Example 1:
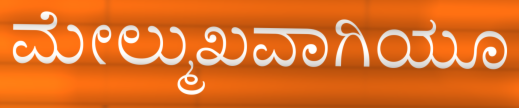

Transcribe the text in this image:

ಮೇಲ್ಮುಖವಾಗಿಯೂ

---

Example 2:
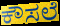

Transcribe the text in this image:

ಕೌಸಲೆ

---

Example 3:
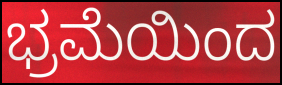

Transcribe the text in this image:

ಭ್ರಮೆಯಿಂದ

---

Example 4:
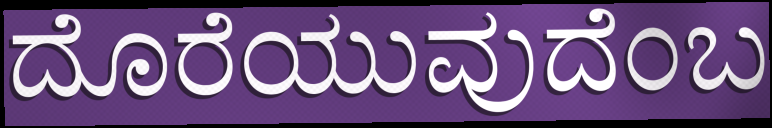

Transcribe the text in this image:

ದೊರೆಯುವುದೆಂಬ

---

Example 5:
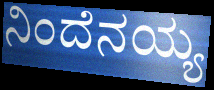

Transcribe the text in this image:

ನಿಂದೆನಯ್ಯ